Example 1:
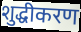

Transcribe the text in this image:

शुद्धीकरण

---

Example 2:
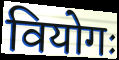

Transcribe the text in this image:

वियोगः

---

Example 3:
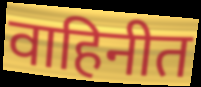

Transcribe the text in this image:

वाहिनीत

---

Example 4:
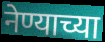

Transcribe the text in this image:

नेण्याच्या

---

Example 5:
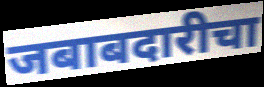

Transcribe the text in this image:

जबाबदारीचा